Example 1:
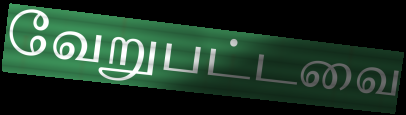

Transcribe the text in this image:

வேறுபட்டவை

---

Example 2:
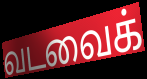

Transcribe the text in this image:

வடவைக்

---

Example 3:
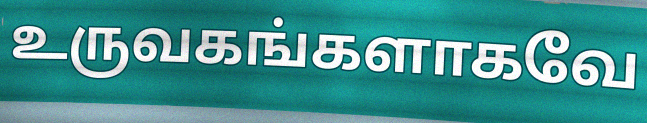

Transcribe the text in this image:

உருவகங்களாகவே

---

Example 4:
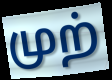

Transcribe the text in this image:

முற்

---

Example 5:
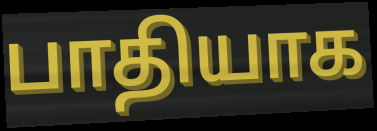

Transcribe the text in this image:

பாதியாக